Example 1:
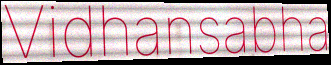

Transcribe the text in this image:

Vidhansabha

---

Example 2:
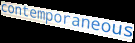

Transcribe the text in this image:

contemporaneous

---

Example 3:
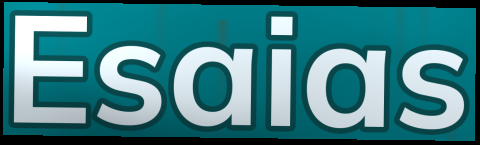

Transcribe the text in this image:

Esaias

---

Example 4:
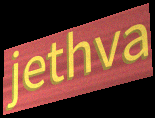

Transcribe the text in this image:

jethva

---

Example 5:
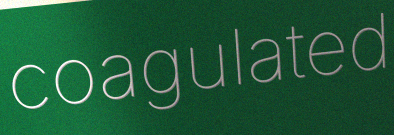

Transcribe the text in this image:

coagulated